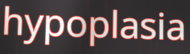
hypoplasia